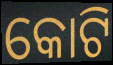
କୋଟି